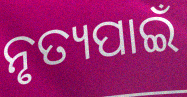
ନୃତ୍ୟପାଇଁ